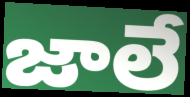
జాలే